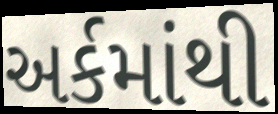
અર્કમાંથી